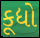
કૂદ્યો